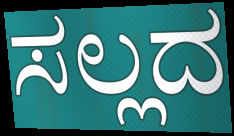
ಸಲ್ಲದ